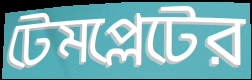
টেমপ্লেটের